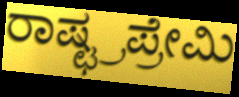
ರಾಷ್ಟ್ರಪ್ರೇಮಿ